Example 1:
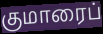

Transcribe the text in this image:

குமாரைப்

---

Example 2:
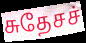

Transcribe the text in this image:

சுதேசச்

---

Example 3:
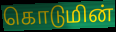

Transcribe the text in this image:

கொடுமின்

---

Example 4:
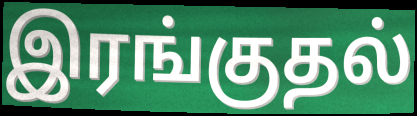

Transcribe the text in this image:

இரங்குதல்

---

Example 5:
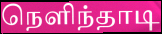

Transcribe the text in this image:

நெளிந்தாடி